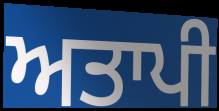
ਅਤਾਪੀ